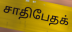
சாதிபேதக்